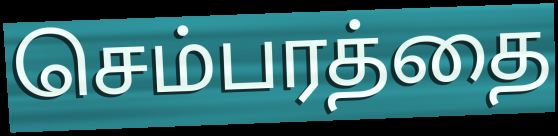
செம்பரத்தை